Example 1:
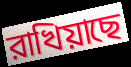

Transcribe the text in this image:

রাখিয়াছে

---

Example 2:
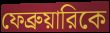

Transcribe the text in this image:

ফেব্রুয়ারিকে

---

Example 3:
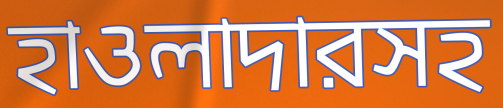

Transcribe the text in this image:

হাওলাদারসহ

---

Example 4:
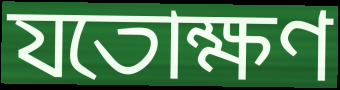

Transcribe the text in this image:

যতোক্ষণ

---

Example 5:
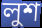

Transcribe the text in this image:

লুশ